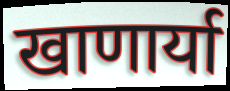
खाणार्या